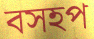
বসহপ